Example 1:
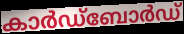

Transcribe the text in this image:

കാർഡ്ബോർഡ്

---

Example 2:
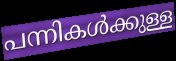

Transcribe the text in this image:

പന്നികൾക്കുള്ള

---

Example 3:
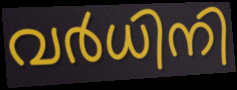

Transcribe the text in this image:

വർധിനി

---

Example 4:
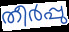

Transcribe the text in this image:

തീർപ്പു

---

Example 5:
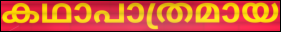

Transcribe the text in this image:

കഥാപാത്രമായ